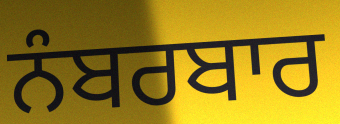
ਨੰਬਰਬਾਰ